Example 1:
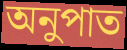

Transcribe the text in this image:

অনুপাত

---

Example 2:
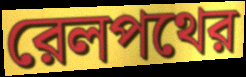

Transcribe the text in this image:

রেলপথের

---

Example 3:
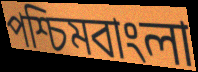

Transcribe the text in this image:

পশ্চিমবাংলা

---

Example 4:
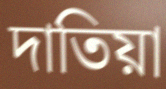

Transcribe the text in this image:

দাতিয়া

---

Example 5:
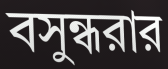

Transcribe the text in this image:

বসুন্ধরার